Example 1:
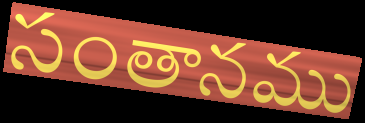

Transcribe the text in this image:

సంతానము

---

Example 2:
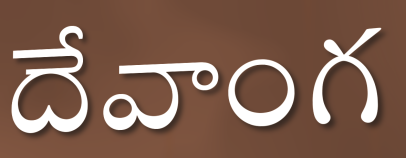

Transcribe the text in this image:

దేవాంగ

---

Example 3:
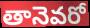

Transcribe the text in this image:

తానెవరో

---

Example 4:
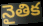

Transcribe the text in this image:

నైతిక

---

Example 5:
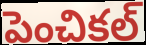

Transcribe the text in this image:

పెంచికల్